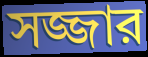
সজ্জার